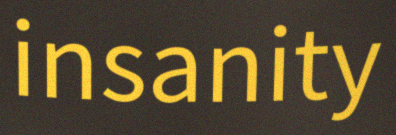
insanity